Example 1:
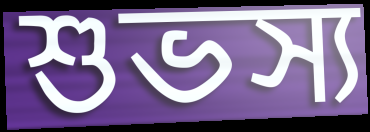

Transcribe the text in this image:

শুভস্য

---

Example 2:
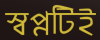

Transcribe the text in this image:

স্বপ্নটিই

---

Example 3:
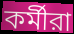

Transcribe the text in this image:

কর্মীরা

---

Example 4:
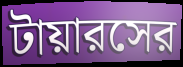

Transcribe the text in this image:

টায়ারসের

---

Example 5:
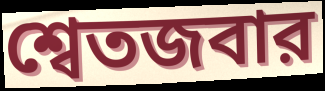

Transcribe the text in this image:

শ্বেতজবার